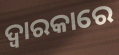
ଦ୍ବାରକାରେ